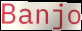
Banjo